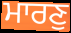
ਮਾਰਣੁ